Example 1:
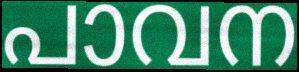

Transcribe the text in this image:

പാവന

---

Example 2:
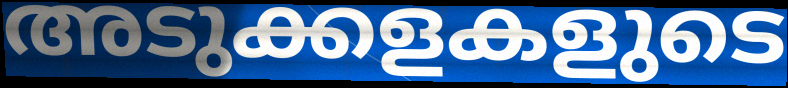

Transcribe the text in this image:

അടുക്കളകളുടെ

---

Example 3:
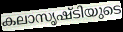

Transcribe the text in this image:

കലാസൃഷ്ടിയുടെ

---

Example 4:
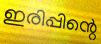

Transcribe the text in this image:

ഇരിപ്പിന്റെ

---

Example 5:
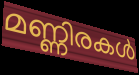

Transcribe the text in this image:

മണ്ണിരകൾ